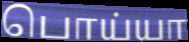
பொய்யா